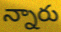
న్నారు